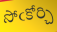
సోఁకోర్చి